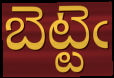
బెట్టెఁ